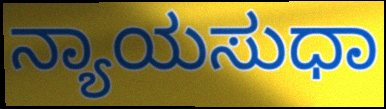
ನ್ಯಾಯಸುಧಾ